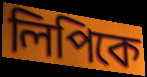
লিপিকে